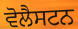
ਵੋਲੈਸਟਨ